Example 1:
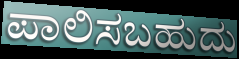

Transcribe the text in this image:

ಪಾಲಿಸಬಹುದು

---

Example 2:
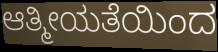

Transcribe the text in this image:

ಆತ್ಮೀಯತೆಯಿಂದ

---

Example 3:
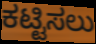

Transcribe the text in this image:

ಕಟ್ಟಿಸಲು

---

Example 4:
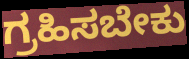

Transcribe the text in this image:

ಗ್ರಹಿಸಬೇಕು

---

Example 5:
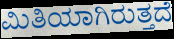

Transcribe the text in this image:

ಮಿತಿಯಾಗಿರುತ್ತದೆ